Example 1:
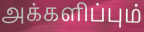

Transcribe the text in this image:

அக்களிப்பும்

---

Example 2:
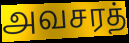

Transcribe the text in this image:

அவசரத்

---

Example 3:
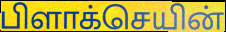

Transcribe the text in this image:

பிளாக்செயின்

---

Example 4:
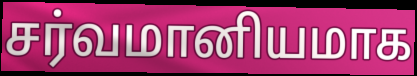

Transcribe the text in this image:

சர்வமானியமாக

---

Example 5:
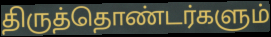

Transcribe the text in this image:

திருத்தொண்டர்களும்